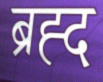
ब्रह्द